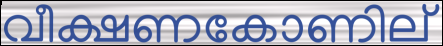
വീക്ഷണകോണില്